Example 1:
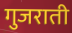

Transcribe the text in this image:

गुजराती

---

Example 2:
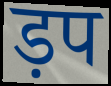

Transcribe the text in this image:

ड़प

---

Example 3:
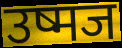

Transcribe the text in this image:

उष्मज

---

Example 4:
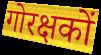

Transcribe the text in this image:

गोरक्षकों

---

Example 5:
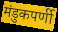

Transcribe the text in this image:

मंडुकपर्णी